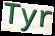
Tyr